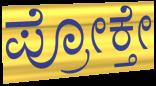
ಪ್ರೋಕ್ತೇ